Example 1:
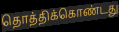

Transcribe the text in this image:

தொத்திக்கொண்டது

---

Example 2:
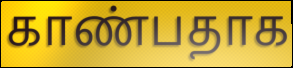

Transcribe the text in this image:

காண்பதாக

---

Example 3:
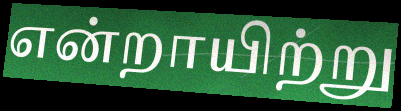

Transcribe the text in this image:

என்றாயிற்று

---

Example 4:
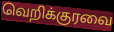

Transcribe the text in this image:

வெறிக்குரவை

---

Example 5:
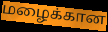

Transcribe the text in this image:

மழைக்கான